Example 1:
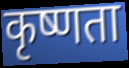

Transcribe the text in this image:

कृष्णता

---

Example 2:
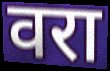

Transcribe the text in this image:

वरा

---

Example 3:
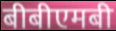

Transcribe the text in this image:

बीबीएमबी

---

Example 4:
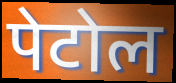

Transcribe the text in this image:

पेटोल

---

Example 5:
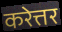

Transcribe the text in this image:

करेत्तर